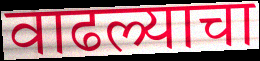
वाढल्याचा